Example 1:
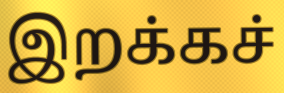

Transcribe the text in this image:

இறக்கச்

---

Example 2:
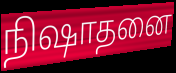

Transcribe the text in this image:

நிஷாதனை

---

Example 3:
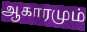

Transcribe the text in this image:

ஆகாரமும்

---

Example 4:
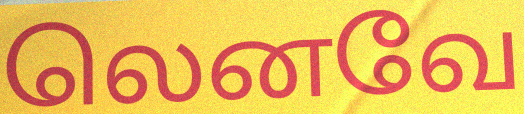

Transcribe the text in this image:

லெனவே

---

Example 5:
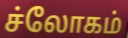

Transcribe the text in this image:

ச்லோகம்